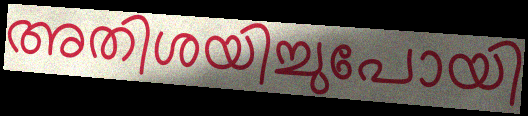
അതിശയിച്ചുപോയി